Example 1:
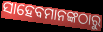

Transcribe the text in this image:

ସାହେବମାନଙ୍କଠାରୁ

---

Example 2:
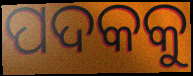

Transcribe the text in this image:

ପଦକକୁ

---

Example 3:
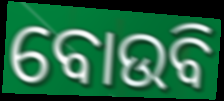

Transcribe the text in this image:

ବୋଉବି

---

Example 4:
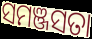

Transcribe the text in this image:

ସମଞ୍ଜସତା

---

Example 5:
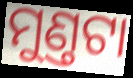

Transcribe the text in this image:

ମୁଣ୍ତଟା